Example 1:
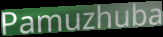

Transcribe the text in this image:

Pamuzhuba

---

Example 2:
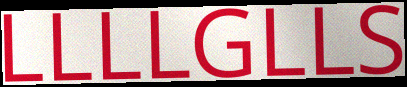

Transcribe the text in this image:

LLLLGLLS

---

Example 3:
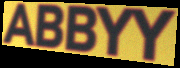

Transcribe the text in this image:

ABBYY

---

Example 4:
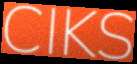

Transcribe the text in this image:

CIKS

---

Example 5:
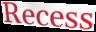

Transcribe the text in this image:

Recess